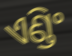
ଏଣ୍ଡିଂ